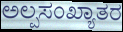
ಅಲ್ಪಸಂಖ್ಯಾತರ